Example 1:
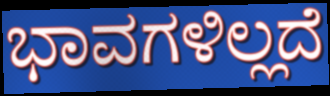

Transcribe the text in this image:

ಭಾವಗಳಿಲ್ಲದೆ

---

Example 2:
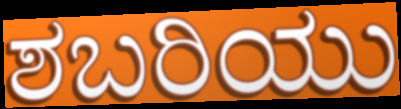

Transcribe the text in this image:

ಶಬರಿಯು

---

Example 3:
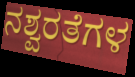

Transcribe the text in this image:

ನಶ್ವರತೆಗಳ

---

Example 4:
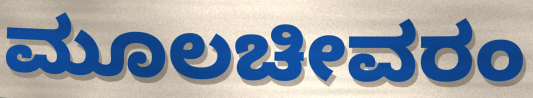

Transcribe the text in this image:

ಮೂಲಚೀವರಂ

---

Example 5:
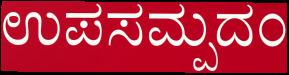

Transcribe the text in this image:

ಉಪಸಮ್ಪದಂ